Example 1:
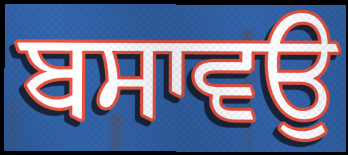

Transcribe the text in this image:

ਬਸਾਵਉ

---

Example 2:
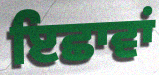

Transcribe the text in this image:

ਇਛਾਵਾਂ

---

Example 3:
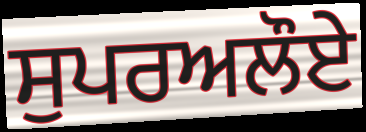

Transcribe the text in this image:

ਸੁਪਰਅਲੌਏ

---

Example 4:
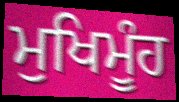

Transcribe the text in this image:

ਮੁਖਿਮੂੰਹ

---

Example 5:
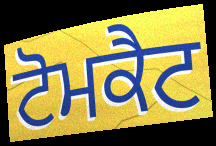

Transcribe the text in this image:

ਟੋਮਕੈਟ